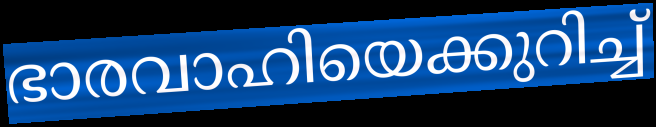
ഭാരവാഹിയെക്കുറിച്ച്